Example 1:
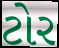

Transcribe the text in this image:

ટોર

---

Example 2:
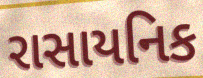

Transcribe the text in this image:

રાસાયનિક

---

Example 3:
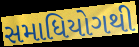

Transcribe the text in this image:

સમાધિયોગથી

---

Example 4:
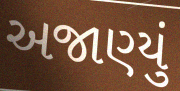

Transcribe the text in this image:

અજાણ્યું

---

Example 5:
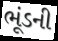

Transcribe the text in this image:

ભૂંડની